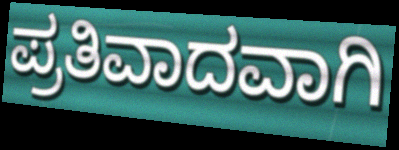
ಪ್ರತಿವಾದವಾಗಿ